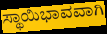
ಸ್ಥಾಯಿಭಾವವಾಗಿ